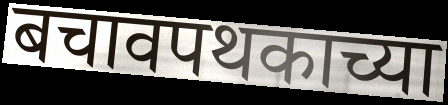
बचावपथकाच्या